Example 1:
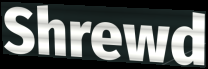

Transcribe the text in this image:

Shrewd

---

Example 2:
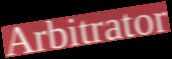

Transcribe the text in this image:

Arbitrator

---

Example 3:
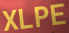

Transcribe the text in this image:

XLPE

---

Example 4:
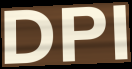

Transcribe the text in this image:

DPI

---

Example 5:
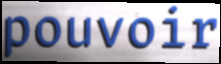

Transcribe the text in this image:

pouvoir